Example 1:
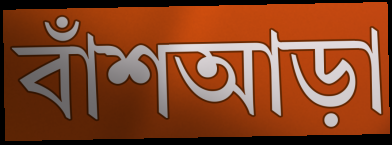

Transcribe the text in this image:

বাঁশআড়া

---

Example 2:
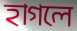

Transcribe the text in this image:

হাগলে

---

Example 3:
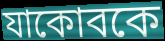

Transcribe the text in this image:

যাকোবকে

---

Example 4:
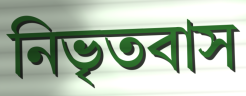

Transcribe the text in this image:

নিভৃতবাস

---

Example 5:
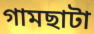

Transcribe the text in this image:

গামছাটা